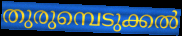
തുരുമ്പെടുക്കൽ